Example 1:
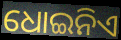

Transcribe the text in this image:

ଧୋଇନିଏ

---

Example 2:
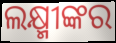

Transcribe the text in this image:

ଲକ୍ଷ୍ମୀଙ୍କର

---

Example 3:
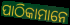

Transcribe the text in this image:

ପାଠିକାମାନେ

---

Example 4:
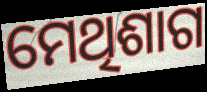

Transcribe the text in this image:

ମେଥିଶାଗ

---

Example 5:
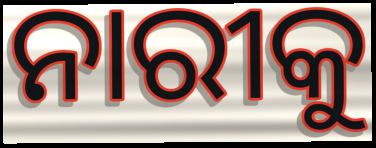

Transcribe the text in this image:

ନାରୀକୁ